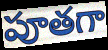
పూతగా